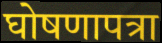
घोषणापत्रा